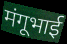
मंगूभाई